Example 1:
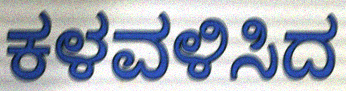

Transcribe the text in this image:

ಕಳವಳಿಸಿದ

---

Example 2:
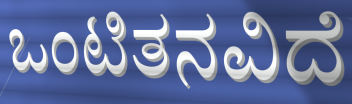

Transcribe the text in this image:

ಒಂಟಿತನವಿದೆ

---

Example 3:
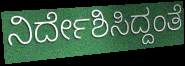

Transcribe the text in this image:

ನಿರ್ದೇಶಿಸಿದ್ದಂತೆ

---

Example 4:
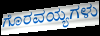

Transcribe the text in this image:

ಗೊರವಯ್ಯಗಳು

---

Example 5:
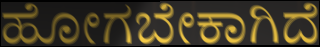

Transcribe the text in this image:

ಹೋಗಬೇಕಾಗಿದೆ